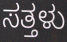
ಸತ್ತಳು